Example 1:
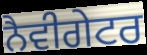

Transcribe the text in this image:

ਨੈਵੀਗੇਟਰ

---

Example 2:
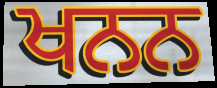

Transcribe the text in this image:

ਖਨਨ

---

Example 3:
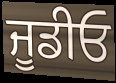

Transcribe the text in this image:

ਜੂਡੀਓ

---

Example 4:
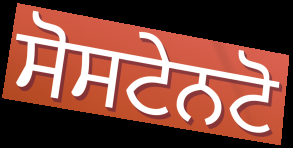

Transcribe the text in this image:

ਸੋਸਟੇਨਟੋ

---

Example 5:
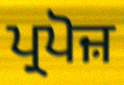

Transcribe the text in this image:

ਪ੍ਰਪੋਜ਼